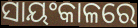
ସାୟଂକାଳରେ